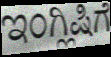
ಇಂಗ್ಲಿಷಿಗೆ